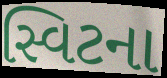
સ્વિટના